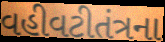
વહીવટીતંત્રના